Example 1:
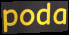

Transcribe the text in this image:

poda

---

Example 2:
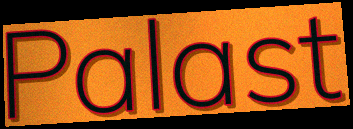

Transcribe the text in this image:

Palast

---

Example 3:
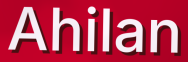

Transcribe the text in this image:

Ahilan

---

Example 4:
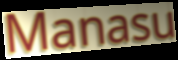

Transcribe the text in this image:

Manasu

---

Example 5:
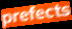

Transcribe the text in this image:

prefects